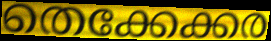
തെക്കേക്കര